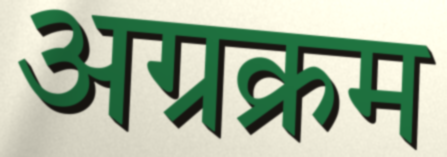
अग्रक्रम